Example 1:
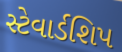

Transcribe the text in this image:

સ્ટેવાર્ડશિપ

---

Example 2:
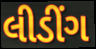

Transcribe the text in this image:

લીડીંગ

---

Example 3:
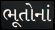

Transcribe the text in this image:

ભૂતોનાં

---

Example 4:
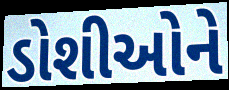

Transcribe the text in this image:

ડોશીઓને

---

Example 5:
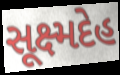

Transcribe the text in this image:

સૂક્ષ્મદેહ